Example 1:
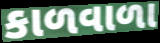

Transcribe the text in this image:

કાળવાળા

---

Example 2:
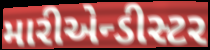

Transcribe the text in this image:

મારીએન્ડીસ્ટર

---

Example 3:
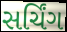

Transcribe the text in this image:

સર્ચિંગ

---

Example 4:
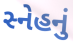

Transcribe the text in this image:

સ્નેહનું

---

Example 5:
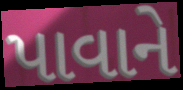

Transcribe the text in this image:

પાવાને